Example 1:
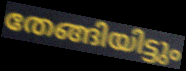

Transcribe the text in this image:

തേങ്ങിയിട്ടും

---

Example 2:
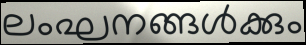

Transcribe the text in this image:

ലംഘനങ്ങൾക്കും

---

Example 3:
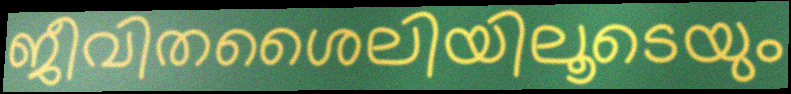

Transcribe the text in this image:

ജീവിതശൈലിയിലൂടെയും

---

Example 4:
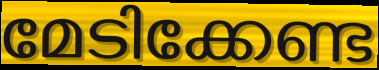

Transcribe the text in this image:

മേടിക്കേണ്ട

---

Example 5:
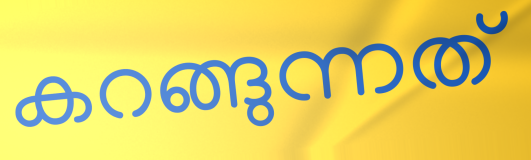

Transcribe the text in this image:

കറങ്ങുന്നത്